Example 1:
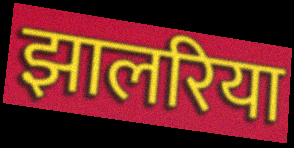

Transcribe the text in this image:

झालरिया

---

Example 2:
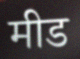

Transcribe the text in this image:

मीड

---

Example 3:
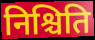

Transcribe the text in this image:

निश्चिति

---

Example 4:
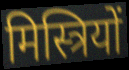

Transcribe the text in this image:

मिस्त्रियों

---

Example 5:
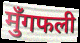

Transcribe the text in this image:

मुँगफली